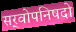
सर्वोपनिषदो